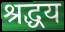
श्रद्धय